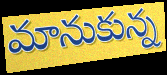
మానుకున్న